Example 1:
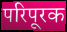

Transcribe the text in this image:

परिपूरक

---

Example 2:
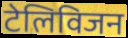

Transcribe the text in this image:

टेलिविजन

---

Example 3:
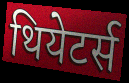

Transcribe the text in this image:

थियेटर्स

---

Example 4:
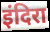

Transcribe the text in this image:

इंदिरा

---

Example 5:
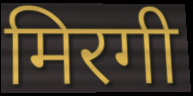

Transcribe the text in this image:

मिरगी